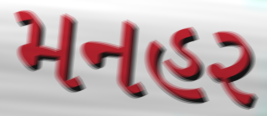
મનહર